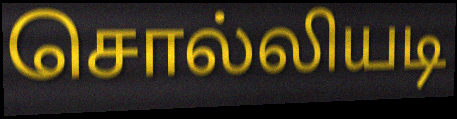
சொல்லியடி